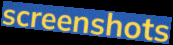
screenshots